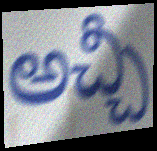
అచ్చీ